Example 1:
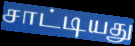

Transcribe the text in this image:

சாட்டியது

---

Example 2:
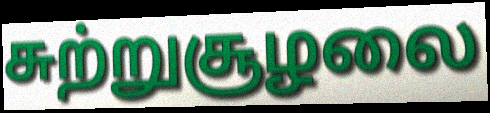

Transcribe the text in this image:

சுற்றுசூழலை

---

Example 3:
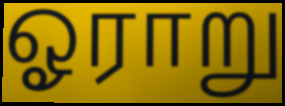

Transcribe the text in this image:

ஓராறு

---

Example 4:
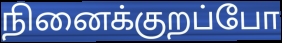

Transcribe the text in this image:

நினைக்குறப்போ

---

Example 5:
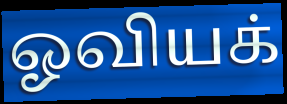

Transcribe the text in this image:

ஓவியக்